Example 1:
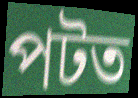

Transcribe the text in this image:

পটত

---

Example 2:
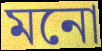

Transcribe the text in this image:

মনো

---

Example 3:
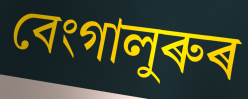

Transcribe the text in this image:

বেংগালুৰুৰ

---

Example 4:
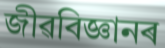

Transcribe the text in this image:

জীৱবিজ্ঞানৰ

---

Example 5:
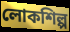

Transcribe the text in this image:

লোকশিল্প